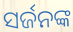
ସର୍ଜନଙ୍କ